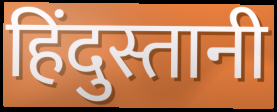
हिंदुस्तानी